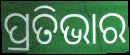
ପ୍ରତିଭାର